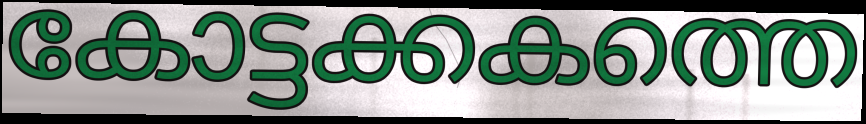
കോട്ടക്കകത്തെ